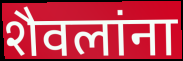
शैवलांना